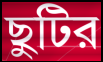
ছুটির